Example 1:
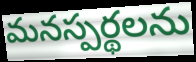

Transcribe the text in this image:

మనస్పర్థలను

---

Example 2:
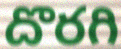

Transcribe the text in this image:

దొరగి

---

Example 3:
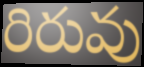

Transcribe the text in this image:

రిరువు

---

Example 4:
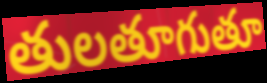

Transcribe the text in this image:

తులతూగుతూ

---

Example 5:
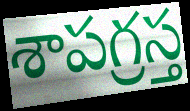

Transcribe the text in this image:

శాపగ్రస్త